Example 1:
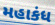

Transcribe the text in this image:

મહાકંધ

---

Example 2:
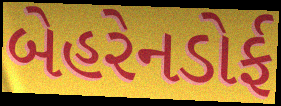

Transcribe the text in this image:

બેહરેનડોર્ફ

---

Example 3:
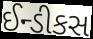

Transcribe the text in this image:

ઈન્ડીકસ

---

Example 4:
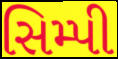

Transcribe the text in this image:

સિમ્પી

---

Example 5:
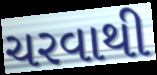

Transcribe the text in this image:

ચરવાથી